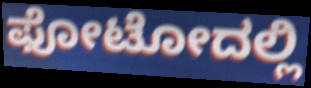
ಫೋಟೋದಲ್ಲಿ